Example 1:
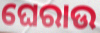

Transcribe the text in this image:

ଘେରାଉ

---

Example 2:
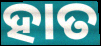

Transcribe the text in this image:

ହାତ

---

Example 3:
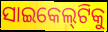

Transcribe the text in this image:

ସାଇକେଲ୍‌ଟିକୁ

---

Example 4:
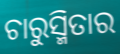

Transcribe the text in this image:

ଚାରୁସ୍ମିତାର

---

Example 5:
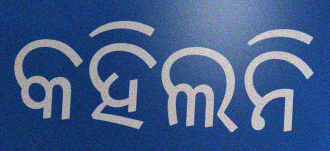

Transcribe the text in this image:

କହିଲନି